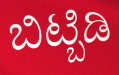
ಬಿಟ್ಬಿಡಿ